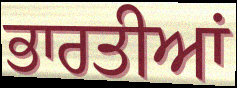
ਭਾਰਤੀਆਂ